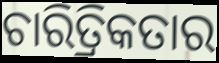
ଚାରିତ୍ରିକତାର